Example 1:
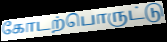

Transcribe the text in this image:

கோடற்பொருட்டு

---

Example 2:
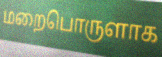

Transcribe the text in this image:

மறைபொருளாக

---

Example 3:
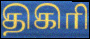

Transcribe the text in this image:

திகிரி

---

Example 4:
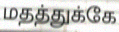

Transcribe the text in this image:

மதத்துக்கே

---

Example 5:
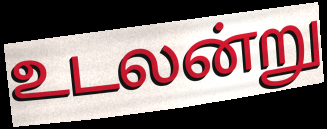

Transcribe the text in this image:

உடலன்று